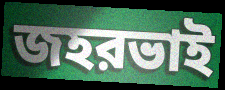
জহরভাই